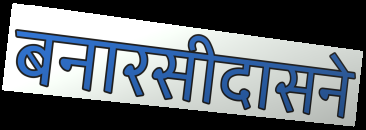
बनारसीदासने